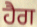
ਹੈਗ